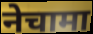
नेचामा